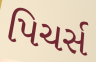
પિચર્સ